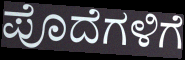
ಪೊದೆಗಳಿಗೆ